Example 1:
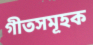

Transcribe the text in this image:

গীতসমূহক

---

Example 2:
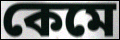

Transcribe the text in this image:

কেমে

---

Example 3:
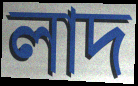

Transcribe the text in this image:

লাদ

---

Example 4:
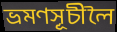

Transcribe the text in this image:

ভ্ৰমণসূচীলৈ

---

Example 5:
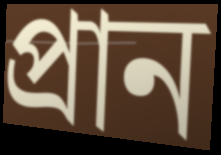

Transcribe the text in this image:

প্ৰান